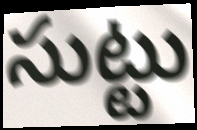
సుట్టు